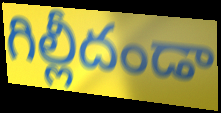
గిల్లీదండా